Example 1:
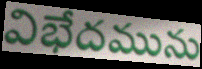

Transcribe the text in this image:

విభేదమును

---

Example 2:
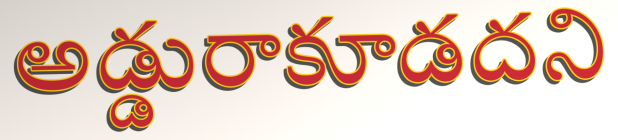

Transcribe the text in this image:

అడ్డురాకూడదని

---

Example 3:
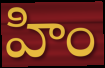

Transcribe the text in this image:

హిం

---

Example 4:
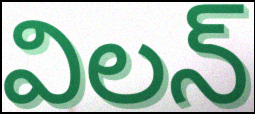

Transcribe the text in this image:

విలన్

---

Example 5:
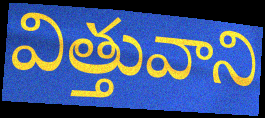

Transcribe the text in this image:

విత్తువాని